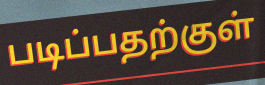
படிப்பதற்குள்